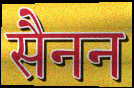
सैनन